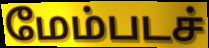
மேம்படச்